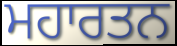
ਮਹਾਰਤਨ